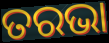
ତରଭା